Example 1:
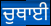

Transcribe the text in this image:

ਚੁਥਾਈ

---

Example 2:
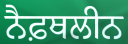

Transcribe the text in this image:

ਨੈਫ਼ਥਲੀਨ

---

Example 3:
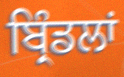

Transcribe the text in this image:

ਬ੍ਰਿੰਡਲਾਂ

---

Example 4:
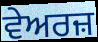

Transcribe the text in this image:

ਵੇਅਰਜ਼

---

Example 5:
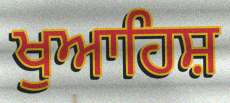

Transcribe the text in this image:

ਖੁਆਹਿਸ਼